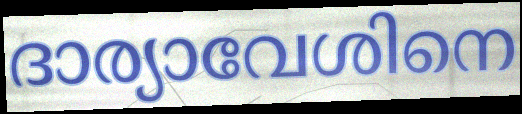
ദാര്യാവേശിനെ